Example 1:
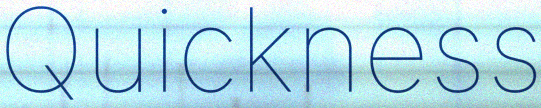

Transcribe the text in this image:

Quickness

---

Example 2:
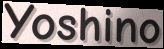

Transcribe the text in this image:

Yoshino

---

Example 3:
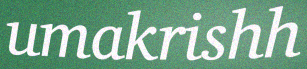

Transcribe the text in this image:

umakrishh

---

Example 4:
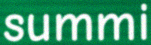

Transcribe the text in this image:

summi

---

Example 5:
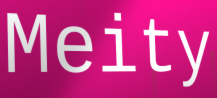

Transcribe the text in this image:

Meity